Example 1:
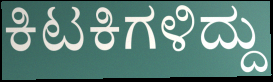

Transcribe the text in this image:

ಕಿಟಕಿಗಳಿದ್ದು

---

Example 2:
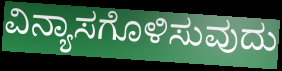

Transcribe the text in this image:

ವಿನ್ಯಾಸಗೊಳಿಸುವುದು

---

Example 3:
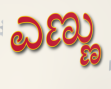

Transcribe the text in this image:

ಎಣ್ಣು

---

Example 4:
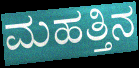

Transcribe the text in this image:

ಮಹತ್ತಿನ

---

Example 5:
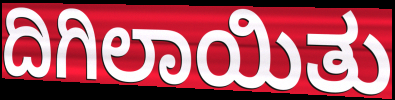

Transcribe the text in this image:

ದಿಗಿಲಾಯಿತು